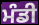
ਮੰਡੀ